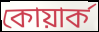
কোয়ার্ক